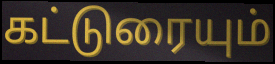
கட்டுரையும்